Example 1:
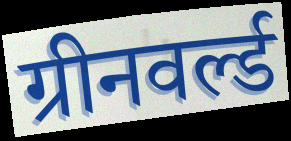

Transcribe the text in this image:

ग्रीनवर्ल्ड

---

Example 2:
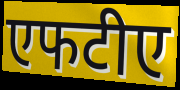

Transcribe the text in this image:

एफटीए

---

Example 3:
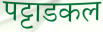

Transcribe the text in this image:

पट्टाडकल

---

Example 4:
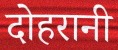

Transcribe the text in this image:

दोहरानी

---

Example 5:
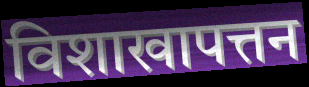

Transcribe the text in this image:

विशाखापत्तन